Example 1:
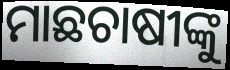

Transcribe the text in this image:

ମାଛଚାଷୀଙ୍କୁ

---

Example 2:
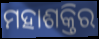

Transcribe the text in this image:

ମହାଶକ୍ତିର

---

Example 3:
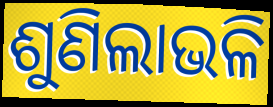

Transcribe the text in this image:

ଶୁଣିଲାଭଳି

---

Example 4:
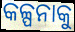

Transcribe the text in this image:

କଳ୍ପନାକୁ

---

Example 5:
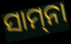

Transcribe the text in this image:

ସାମ୍‍ନା